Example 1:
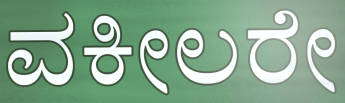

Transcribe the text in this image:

ವಕೀಲರೇ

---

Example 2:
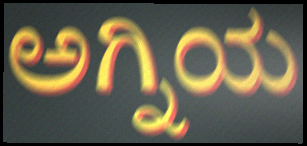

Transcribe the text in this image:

ಅಗ್ನಿಯ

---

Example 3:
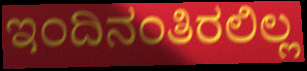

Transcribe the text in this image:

ಇಂದಿನಂತಿರಲಿಲ್ಲ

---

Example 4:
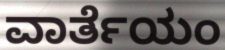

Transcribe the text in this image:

ವಾರ್ತೆಯಂ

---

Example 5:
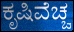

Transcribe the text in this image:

ಕೃಷಿವೆಚ್ಚ